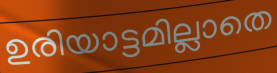
ഉരിയാട്ടമില്ലാതെ